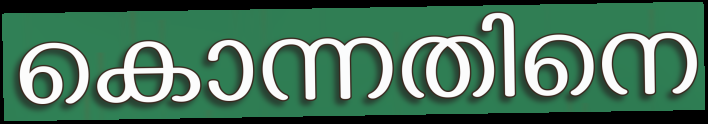
കൊന്നതിനെ